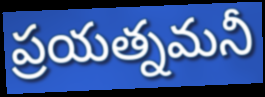
ప్రయత్నమనీ